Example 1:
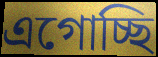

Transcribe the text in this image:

এগোচ্ছি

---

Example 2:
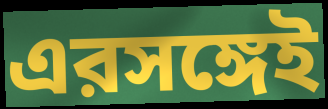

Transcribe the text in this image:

এরসঙ্গেই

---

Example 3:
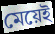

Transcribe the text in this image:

মেয়েই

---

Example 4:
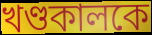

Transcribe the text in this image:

খণ্ডকালকে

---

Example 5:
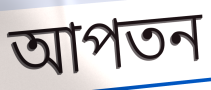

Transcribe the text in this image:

আপতন